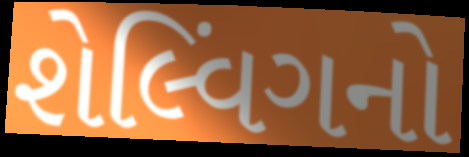
શેલ્વિંગનો